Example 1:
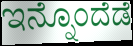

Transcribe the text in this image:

ಇನ್ನೊಂದೆಡೆ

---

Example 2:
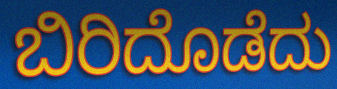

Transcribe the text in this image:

ಬಿರಿದೊಡೆದು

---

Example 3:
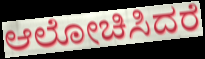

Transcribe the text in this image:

ಆಲೋಚಿಸಿದರೆ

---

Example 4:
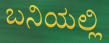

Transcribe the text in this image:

ಬನಿಯಲ್ಲಿ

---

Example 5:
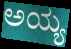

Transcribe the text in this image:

ಅಯ್ಯ